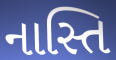
નાસ્તિ